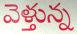
వెళ్తున్న